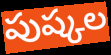
పుష్కల